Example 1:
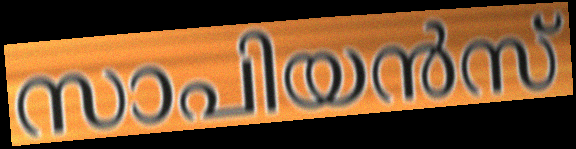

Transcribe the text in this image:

സാപിയൻസ്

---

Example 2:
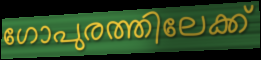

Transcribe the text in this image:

ഗോപുരത്തിലേക്ക്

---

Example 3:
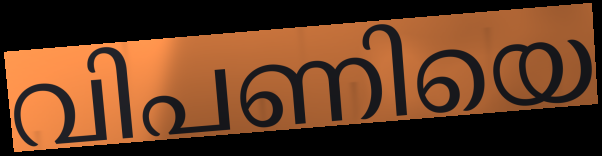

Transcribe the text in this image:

വിപണിയെ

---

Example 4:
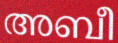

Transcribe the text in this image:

അബീ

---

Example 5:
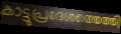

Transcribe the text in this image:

കാട്ടുപ്രദേശത്തെത്തി